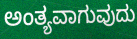
ಅಂತ್ಯವಾಗುವುದು